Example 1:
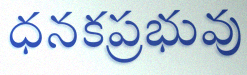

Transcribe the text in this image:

ధనకప్రభువు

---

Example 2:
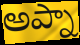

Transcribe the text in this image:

అప్నా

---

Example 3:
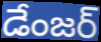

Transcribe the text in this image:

డేంజర్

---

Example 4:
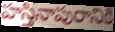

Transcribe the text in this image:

హస్తినాపురానికి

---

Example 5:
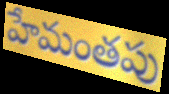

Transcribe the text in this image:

హేమంతపు